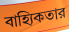
বাহ্যিকতার